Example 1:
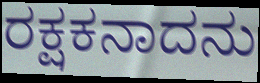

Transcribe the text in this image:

ರಕ್ಷಕನಾದನು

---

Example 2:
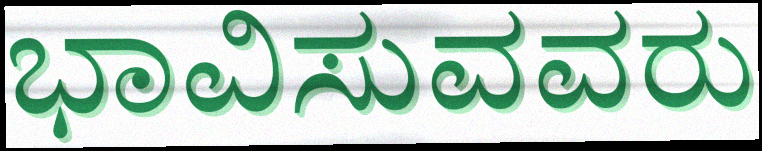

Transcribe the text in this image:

ಭಾವಿಸುವವರು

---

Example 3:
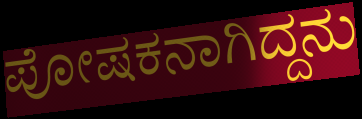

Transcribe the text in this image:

ಪೋಷಕನಾಗಿದ್ದನು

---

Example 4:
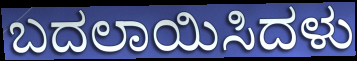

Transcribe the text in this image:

ಬದಲಾಯಿಸಿದಳು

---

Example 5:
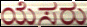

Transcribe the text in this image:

ಯೆಸರು